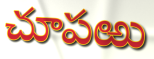
చూపఱు